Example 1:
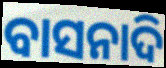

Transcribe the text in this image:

ବାସନାଦି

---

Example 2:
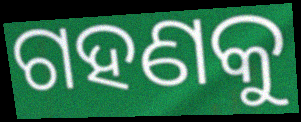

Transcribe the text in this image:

ଗହଣକୁ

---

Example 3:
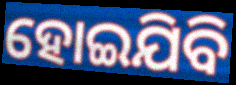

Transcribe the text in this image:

ହୋଇଯିବି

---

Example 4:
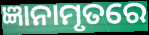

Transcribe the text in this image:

ଜ୍ଞାନାମୃତରେ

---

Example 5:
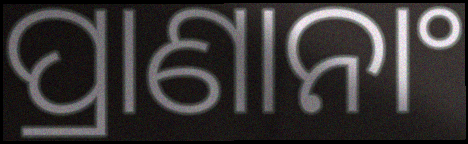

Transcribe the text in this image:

ପ୍ରାଣାନାଂ